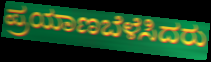
ಪ್ರಯಾಣಬೆಳೆಸಿದರು